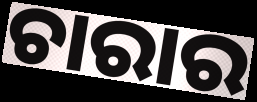
ଚାରାର